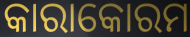
କାରାକୋରମ